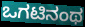
ಒಗಟಿನಂಥ